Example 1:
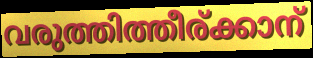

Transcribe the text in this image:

വരുത്തിത്തീര്ക്കാന്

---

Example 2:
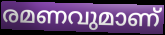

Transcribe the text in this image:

രമണവുമാണ്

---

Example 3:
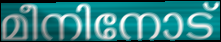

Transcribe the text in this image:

മീനിനോട്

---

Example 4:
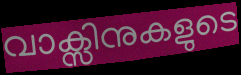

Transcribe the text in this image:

വാക്സിനുകളുടെ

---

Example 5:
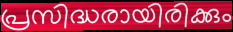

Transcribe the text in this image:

പ്രസിദ്ധരായിരിക്കും